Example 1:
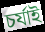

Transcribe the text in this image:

চর্যাই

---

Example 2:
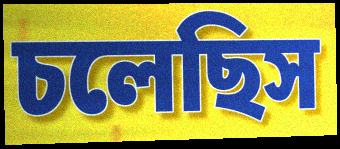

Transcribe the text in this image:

চলেছিস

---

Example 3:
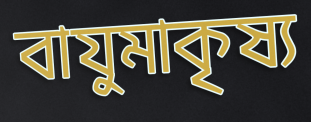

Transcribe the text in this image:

বাযুমাকৃষ্য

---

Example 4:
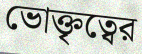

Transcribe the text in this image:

ভোক্তৃত্বের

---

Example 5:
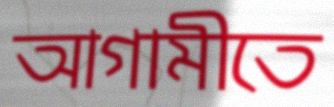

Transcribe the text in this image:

আগামীতে